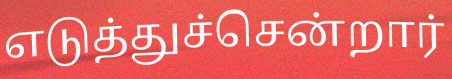
எடுத்துச்சென்றார்